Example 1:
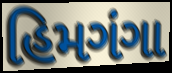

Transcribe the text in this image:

હિમગંગા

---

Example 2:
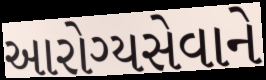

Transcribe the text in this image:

આરોગ્યસેવાને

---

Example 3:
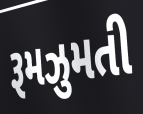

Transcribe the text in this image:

રૂમઝુમતી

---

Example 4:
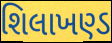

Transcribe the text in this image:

શિલાખણ્ડ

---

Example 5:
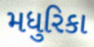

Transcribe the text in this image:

મધુરિકા